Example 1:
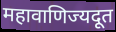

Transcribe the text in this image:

महावाणिज्यदूत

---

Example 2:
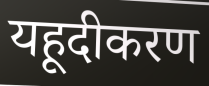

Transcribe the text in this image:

यहूदीकरण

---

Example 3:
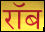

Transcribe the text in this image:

रॉब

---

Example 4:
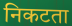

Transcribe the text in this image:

निकटता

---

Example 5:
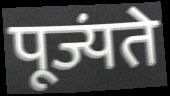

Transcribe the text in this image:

पूज्यंते